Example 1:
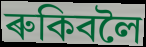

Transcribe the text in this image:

ৰুকিবলৈ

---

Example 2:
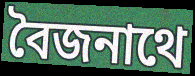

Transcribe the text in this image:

বৈজনাথে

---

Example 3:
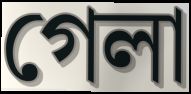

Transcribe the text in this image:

গেলা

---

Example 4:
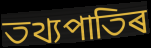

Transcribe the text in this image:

তথ্যপাতিৰ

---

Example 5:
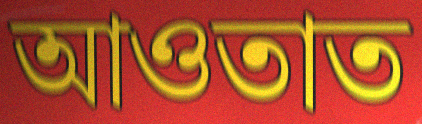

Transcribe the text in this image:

আওতাত